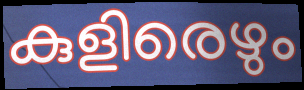
കുളിരെഴും